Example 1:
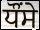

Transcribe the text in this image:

ਧੌਂਸੇ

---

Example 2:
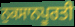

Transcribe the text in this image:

ਨੁਕਸਾਨਪੂਰਤੀ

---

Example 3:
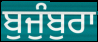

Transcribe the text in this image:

ਬੁਜੁੰਬੁਰਾ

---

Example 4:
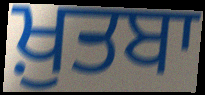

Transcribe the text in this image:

ਖ਼ੁਤਬਾ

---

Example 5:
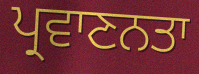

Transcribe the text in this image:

ਪ੍ਰਵਾਣਨਤਾ